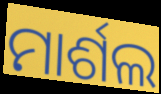
ମାର୍ଶଲ